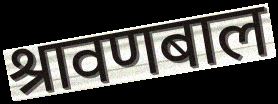
श्रावणबाल